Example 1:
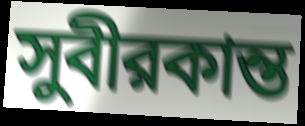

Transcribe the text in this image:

সুবীরকান্ত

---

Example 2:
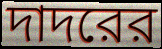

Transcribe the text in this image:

দাদরের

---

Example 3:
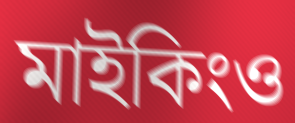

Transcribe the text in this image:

মাইকিংও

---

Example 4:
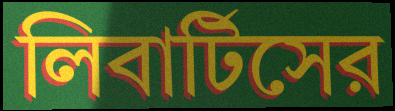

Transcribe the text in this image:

লিবার্টিসের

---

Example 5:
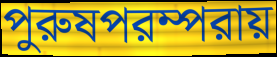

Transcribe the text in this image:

পুরুষপরম্পরায়